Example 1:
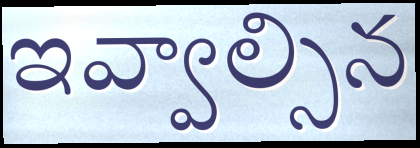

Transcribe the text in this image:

ఇవ్వాల్సిన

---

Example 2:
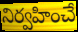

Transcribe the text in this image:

నిర్వహించే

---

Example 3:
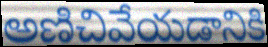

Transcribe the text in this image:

అణిచివేయడానికి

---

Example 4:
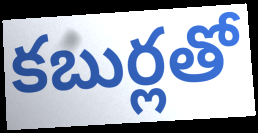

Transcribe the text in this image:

కబుర్లతో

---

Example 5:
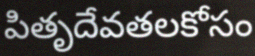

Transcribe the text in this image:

పితృదేవతలకోసం